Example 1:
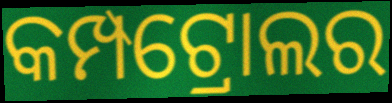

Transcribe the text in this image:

କମ୍ପଟ୍ରୋଲର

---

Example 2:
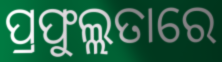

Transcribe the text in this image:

ପ୍ରଫୁଲ୍ଲତାରେ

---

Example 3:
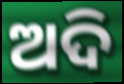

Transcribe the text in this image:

ଅଦି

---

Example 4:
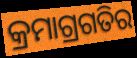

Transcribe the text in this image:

କ୍ରମାଗ୍ରଗତିର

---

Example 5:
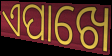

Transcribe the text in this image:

ଏପାଖେ